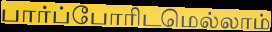
பார்ப்போரிடமெல்லாம்